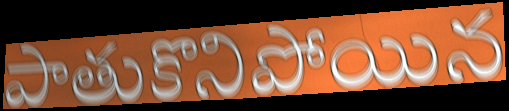
పాతుకొనిపోయిన